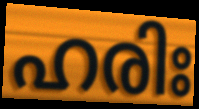
ഹരിഃ